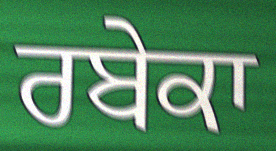
ਰਬੇਕਾ